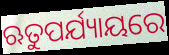
ଋତୁପର୍ଯ୍ୟାୟରେ